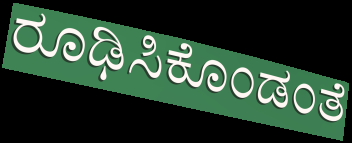
ರೂಢಿಸಿಕೊಂಡಂತೆ